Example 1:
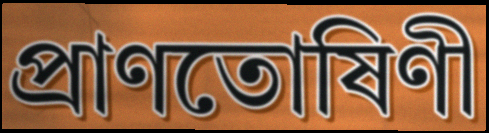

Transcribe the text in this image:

প্ৰাণতোষিণী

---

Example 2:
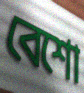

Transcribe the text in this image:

বেশো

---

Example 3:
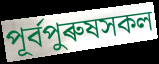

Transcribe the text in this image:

পূৰ্বপুৰুষসকল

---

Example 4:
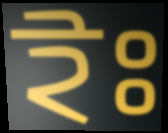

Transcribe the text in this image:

ইঃ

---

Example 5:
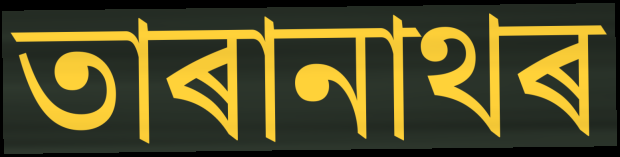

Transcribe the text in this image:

তাৰানাথৰ